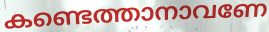
കണ്ടെത്താനാവണേ